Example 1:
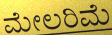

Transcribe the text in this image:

ಮೇಲರಿಮೆ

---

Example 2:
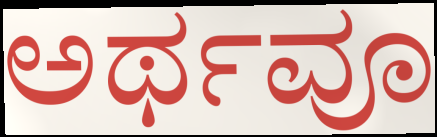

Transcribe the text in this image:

ಅರ್ಥವೂ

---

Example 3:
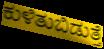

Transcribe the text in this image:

ಕುಳಿತುಬಿಡುತ್ತೆ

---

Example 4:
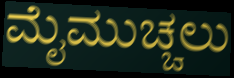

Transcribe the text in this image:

ಮೈಮುಚ್ಚಲು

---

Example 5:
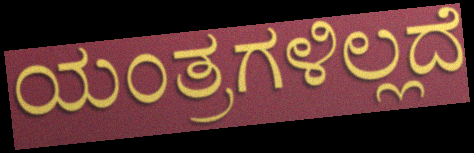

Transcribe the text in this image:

ಯಂತ್ರಗಳಿಲ್ಲದೆ